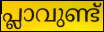
പ്ലാവുണ്ട്